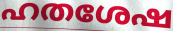
ഹതശേഷ